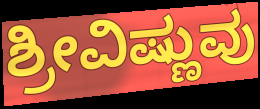
ಶ್ರೀವಿಷ್ಣುವು